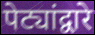
पेट्यांद्वारे